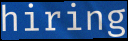
hiring